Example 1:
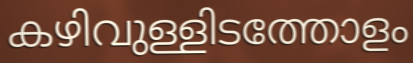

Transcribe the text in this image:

കഴിവുള്ളിടത്തോളം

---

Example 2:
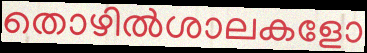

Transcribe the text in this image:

തൊഴിൽശാലകളോ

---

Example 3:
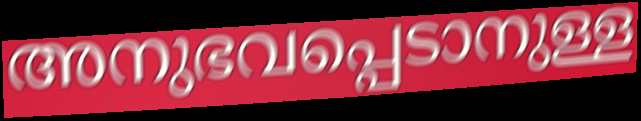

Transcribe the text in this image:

അനുഭവപ്പെടാനുള്ള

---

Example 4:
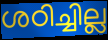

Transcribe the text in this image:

ശഠിച്ചില്ല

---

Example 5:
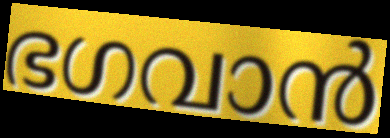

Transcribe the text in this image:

ഭഗവാൻ